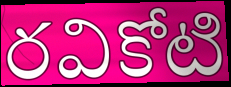
రవికోటి